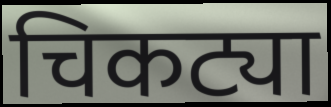
चिकट्या